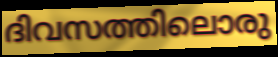
ദിവസത്തിലൊരു